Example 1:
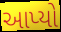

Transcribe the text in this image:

આપ્યો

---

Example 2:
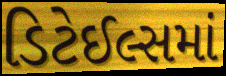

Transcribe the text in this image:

ડિટેઈલ્સમાં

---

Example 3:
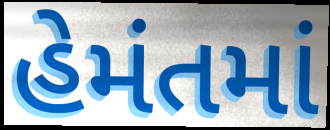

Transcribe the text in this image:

હેમંતમાં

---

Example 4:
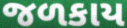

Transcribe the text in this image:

જળકાય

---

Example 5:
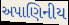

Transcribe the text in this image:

અપાણિનીય